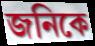
জনিকে